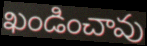
ఖండించావు